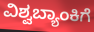
ವಿಶ್ವಬ್ಯಾಂಕಿಗೆ